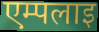
एम्पलाइ